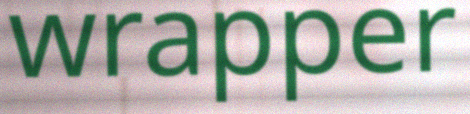
wrapper